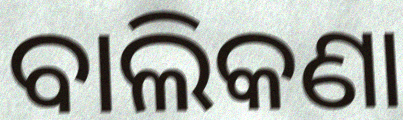
ବାଲିକଣା